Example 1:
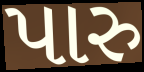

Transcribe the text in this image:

પારુ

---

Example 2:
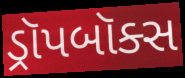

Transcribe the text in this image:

ડ્રૉપબૉક્સ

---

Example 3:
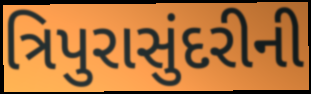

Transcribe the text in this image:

ત્રિપુરાસુંદરીની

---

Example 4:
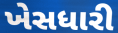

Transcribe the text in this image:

ખેસધારી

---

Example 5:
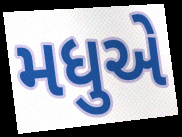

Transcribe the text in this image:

મધુએ